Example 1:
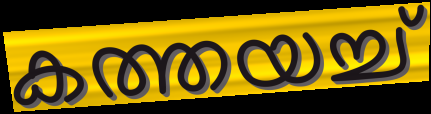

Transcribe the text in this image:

കത്തയച്ച്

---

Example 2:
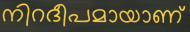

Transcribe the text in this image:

നിറദീപമായാണ്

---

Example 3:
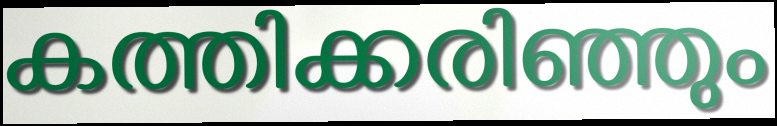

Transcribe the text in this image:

കത്തിക്കരിഞ്ഞും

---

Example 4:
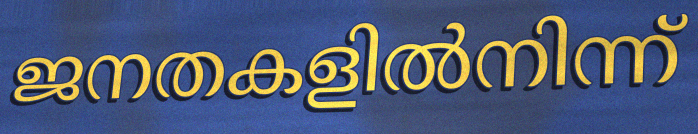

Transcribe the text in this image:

ജനതകളിൽനിന്ന്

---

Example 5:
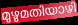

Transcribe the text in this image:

മുഴുമതിയാഴി